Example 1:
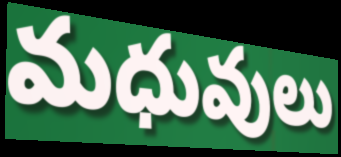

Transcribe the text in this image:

మధువులు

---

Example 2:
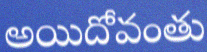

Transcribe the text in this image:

అయిదోవంతు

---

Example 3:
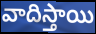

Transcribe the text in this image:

వాదిస్తాయి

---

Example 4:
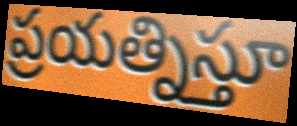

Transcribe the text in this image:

ప్రయత్నిస్తూ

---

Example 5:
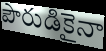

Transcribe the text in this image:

పౌరుడికైనా